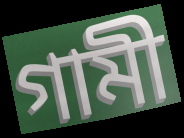
গামী